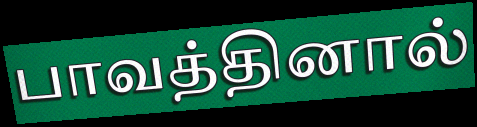
பாவத்தினால்